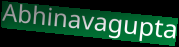
Abhinavagupta